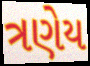
ત્રણેય